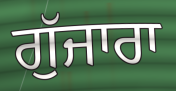
ਗੁੱਜਾਰਾ